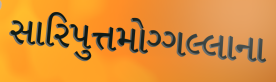
સારિપુત્તમોગ્ગલ્લાના